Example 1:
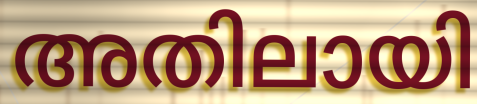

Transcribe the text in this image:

അതിലായി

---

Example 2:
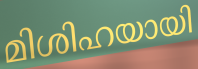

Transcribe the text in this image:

മിശിഹയായി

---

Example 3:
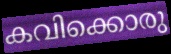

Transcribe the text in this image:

കവിക്കൊരു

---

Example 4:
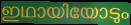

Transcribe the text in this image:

ഇഥായിയോടും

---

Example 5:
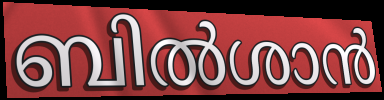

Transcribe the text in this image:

ബിൽശാൻ